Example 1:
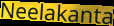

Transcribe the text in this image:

Neelakanta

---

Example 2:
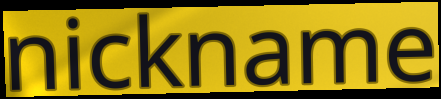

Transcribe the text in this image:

nickname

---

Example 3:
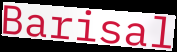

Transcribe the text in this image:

Barisal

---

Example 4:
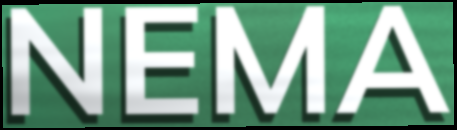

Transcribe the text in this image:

NEMA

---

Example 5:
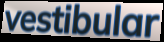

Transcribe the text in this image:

vestibular